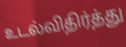
உடல்விதிர்த்து